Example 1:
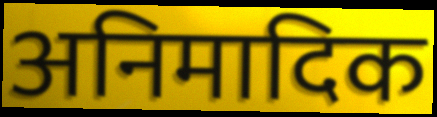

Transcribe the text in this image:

अनिमादिक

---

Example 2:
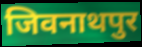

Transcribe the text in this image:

जिवनाथपुर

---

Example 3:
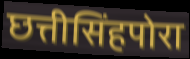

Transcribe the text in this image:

छत्तीसिंहपोरा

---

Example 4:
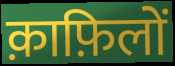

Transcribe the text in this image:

क़ाफ़िलों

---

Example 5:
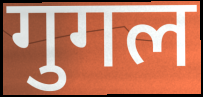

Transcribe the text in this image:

गुगल